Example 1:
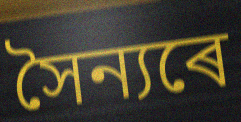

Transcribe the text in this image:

সৈন্যৰে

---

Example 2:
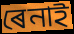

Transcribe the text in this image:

ৰেনাই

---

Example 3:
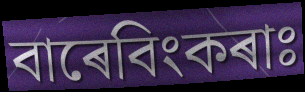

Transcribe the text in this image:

বাৰেবিংকৰাঃ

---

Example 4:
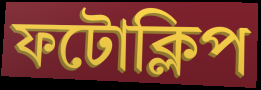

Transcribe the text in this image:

ফটোক্লিপ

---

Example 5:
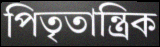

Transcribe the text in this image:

পিতৃতান্ত্ৰিক